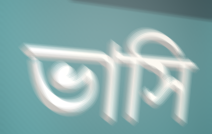
ভাসি